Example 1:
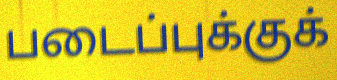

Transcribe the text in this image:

படைப்புக்குக்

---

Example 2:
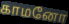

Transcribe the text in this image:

காமனோ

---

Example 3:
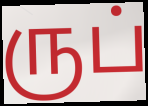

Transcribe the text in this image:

ருப்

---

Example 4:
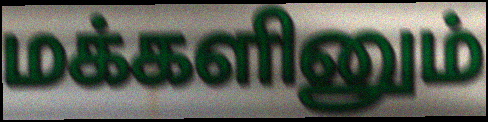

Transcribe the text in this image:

மக்களினும்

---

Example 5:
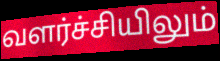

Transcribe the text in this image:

வளர்ச்சியிலும்